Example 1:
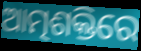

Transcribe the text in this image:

ଆତ୍ମଶକ୍ତିରେ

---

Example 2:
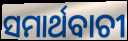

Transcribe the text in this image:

ସମାର୍ଥବାଚୀ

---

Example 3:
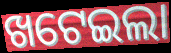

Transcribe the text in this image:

ଖଟେଇଲା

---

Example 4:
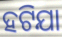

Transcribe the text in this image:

ହଟିଯା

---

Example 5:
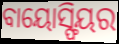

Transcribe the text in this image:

ବାୟୋସ୍ଫିୟର